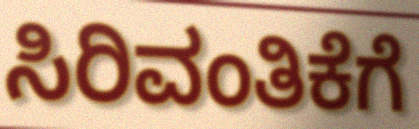
ಸಿರಿವಂತಿಕೆಗೆ